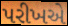
પરીખએ